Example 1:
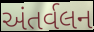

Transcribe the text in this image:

અંતર્વલન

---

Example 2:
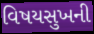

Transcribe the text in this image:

વિષયસુખની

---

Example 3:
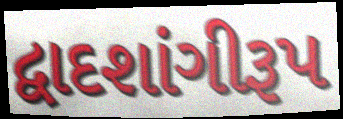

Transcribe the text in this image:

દ્વાદશાંગીરૂપ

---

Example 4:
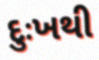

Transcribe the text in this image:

દુઃખથી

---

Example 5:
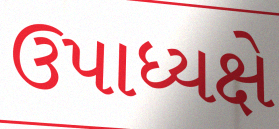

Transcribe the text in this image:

ઉપાધ્યક્ષે